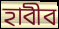
হাবীব